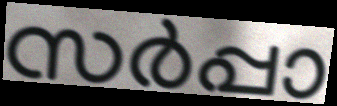
സർപ്പാ